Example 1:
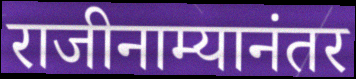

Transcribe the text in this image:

राजीनाम्यानंतर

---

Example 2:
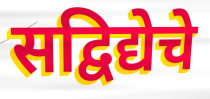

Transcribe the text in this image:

सद्विद्येचे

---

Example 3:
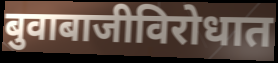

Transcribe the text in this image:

बुवाबाजीविरोधात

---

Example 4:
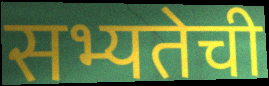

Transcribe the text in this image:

सभ्यतेची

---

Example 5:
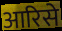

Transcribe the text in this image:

आरिसे